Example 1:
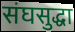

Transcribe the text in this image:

संघसुद्धा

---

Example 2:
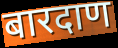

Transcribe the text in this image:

बारदाण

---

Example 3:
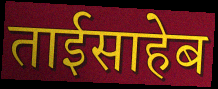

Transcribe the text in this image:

ताईसाहेब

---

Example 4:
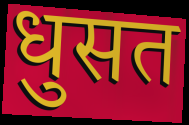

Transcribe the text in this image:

धुसत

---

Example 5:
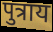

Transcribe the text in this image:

पुत्राय